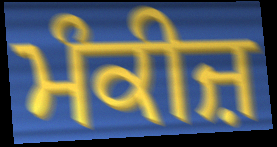
ਮੰਕੀਜ਼